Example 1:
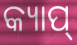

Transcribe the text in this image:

କ୍ୟାପ୍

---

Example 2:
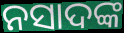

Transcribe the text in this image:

ନସାଦଙ୍କ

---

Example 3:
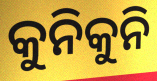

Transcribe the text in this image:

କୁନିକୁନି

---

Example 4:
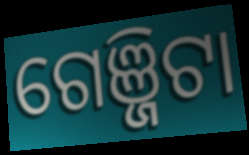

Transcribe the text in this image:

ଗେଞ୍ଜିଟା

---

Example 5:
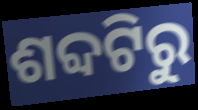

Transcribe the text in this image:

ଶବ୍ଦଟିରୁ